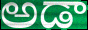
అడా